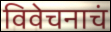
विवेचनाचं